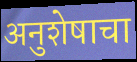
अनुशेषाचा